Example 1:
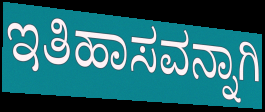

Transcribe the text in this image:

ಇತಿಹಾಸವನ್ನಾಗಿ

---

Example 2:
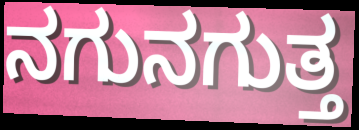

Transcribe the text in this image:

ನಗುನಗುತ್ತ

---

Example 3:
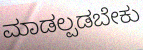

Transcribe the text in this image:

ಮಾಡಲ್ಪಡಬೇಕು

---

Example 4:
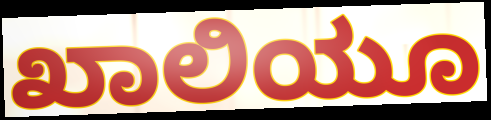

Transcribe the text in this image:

ಖಾಲಿಯೂ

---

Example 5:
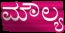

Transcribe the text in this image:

ಮೌಲ್ಯ